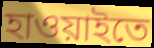
হাওয়াইতে